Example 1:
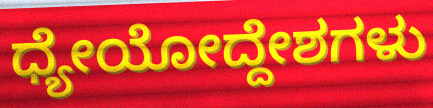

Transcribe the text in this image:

ಧ್ಯೇಯೋದ್ದೇಶಗಳು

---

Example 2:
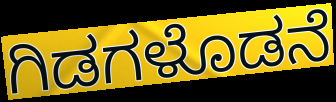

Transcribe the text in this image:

ಗಿಡಗಳೊಡನೆ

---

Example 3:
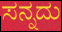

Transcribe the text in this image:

ಸನ್ನದು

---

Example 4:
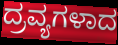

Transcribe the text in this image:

ದ್ರವ್ಯಗಳಾದ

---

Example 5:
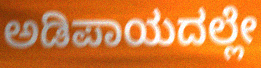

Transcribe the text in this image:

ಅಡಿಪಾಯದಲ್ಲೇ